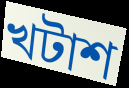
খটাশ